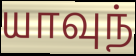
யாவுந்